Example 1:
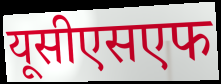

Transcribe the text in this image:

यूसीएसएफ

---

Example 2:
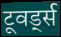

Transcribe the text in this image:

टूवर्ड्स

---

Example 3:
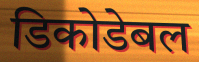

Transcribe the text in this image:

डिकोडेबल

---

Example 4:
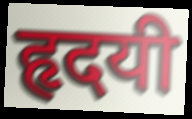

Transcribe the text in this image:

हृदयी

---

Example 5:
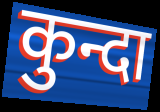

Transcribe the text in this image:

कुन्दा